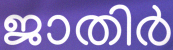
ജാതിർ